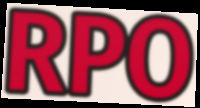
RPO